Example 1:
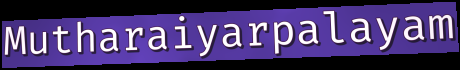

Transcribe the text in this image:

Mutharaiyarpalayam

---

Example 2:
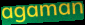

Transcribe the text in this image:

agaman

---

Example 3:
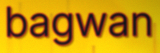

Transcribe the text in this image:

bagwan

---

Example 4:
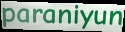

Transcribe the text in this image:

paraniyun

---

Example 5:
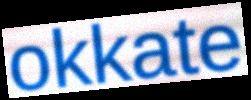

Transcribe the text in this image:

okkate